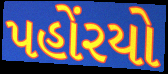
પહોંરયો